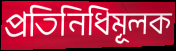
প্ৰতিনিধিমূলক